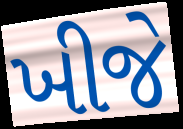
ખીજે